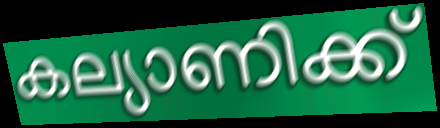
കല്യാണിക്ക്